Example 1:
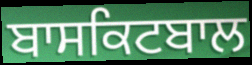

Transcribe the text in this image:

ਬਾਸਕਿਟਬਾਲ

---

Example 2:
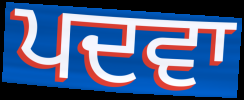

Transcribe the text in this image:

ਪਦਵਾ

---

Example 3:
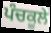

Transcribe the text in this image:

ਪੰਚਕੂਲੇ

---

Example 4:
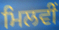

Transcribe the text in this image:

ਮਿਲਵੀਂ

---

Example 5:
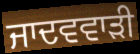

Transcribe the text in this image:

ਜਾਦਵਵਾੜੀ